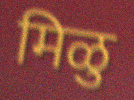
मिळु